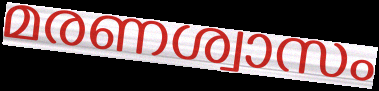
മരണശ്വാസം